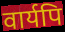
वार्यपि